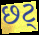
છટ્